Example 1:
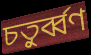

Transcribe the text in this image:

চতুর্ব্বণ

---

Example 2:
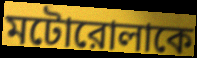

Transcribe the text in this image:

মটোরোলাকে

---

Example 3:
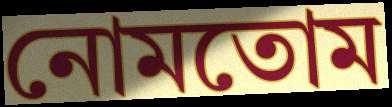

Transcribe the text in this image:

নোমতোম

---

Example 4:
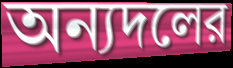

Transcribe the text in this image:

অন্যদলের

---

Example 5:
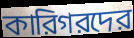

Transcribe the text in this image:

কারিগরদের